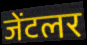
जेंटलर